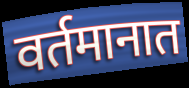
वर्तमानात